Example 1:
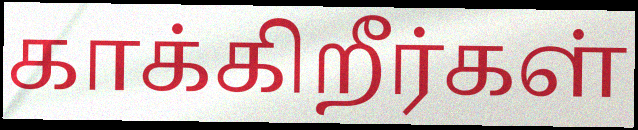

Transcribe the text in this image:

காக்கிறீர்கள்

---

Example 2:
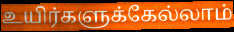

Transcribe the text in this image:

உயிர்களுக்கேல்லாம்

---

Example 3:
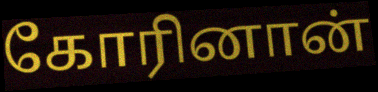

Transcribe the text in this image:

கோரினான்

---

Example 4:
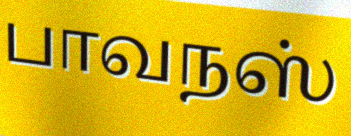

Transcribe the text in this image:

பாவநஸ்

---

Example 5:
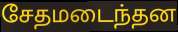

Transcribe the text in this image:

சேதமடைந்தன